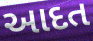
આદત